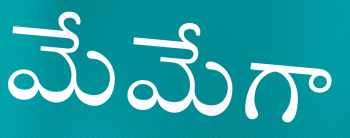
మేమేగా